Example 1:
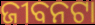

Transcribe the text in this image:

ଜୀବନଟା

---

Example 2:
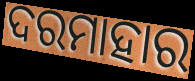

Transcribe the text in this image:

ଦରମାହାର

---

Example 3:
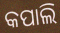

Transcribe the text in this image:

କପାଲି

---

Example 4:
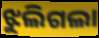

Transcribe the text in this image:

ଝୁଲିଗଲା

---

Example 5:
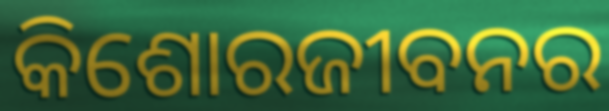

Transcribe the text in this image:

କିଶୋରଜୀବନର